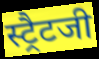
स्ट्रैटजी